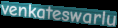
venkateswarlu